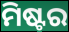
ମିଷ୍ଟର